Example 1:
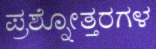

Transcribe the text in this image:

ಪ್ರಶ್ನೋತ್ತರಗಳ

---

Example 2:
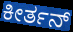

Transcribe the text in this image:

ಕೀರ್ತನ್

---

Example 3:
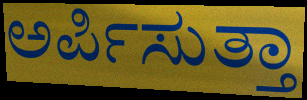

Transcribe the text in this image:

ಅರ್ಪಿಸುತ್ತಾ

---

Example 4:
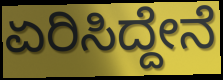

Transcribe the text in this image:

ಏರಿಸಿದ್ದೇನೆ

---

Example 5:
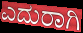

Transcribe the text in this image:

ಎದುರಾಗಿ